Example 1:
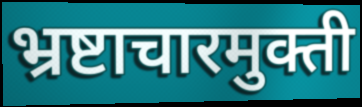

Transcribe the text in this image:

भ्रष्टाचारमुक्ती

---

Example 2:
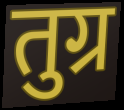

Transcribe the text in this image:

तुग्र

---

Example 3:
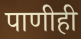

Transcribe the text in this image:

पाणीही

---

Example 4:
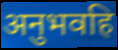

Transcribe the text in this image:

अनुभवहि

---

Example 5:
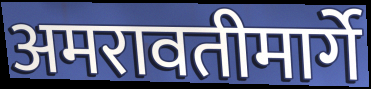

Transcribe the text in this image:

अमरावतीमार्गे